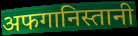
अफगानिस्तानी